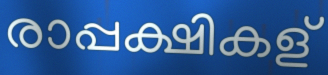
രാപ്പക്ഷികള്